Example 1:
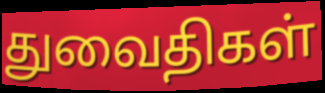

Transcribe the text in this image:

துவைதிகள்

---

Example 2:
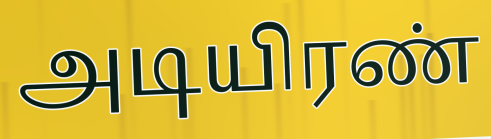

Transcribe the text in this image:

அடியிரண்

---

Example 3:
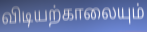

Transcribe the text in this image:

விடியற்காலையும்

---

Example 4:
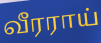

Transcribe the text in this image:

வீரராய்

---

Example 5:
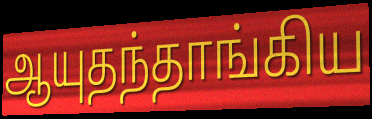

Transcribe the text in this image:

ஆயுதந்தாங்கிய